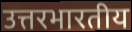
उत्तरभारतीय